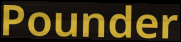
Pounder